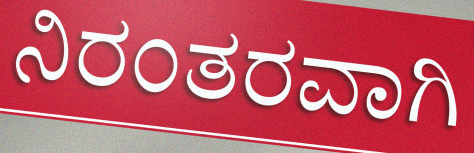
ನಿರಂತರವಾಗಿ